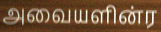
அவையளின்ர